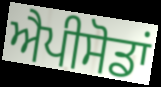
ਐਪੀਸੋਡਾਂ